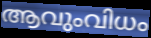
ആവുംവിധം